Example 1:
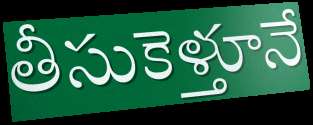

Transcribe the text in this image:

తీసుకెళ్తూనే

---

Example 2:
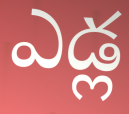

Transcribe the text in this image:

ఎడ్ల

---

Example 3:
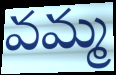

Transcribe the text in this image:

వమ్మ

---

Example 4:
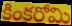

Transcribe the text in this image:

కింకరోమి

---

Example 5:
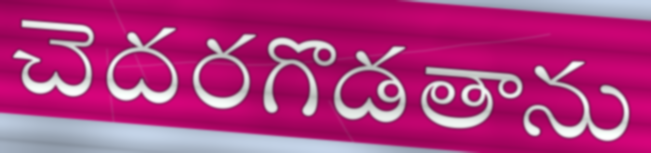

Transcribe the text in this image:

చెదరగొడతాను